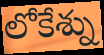
లోకేశ్ను